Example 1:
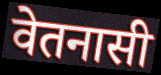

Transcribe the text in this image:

वेतनासी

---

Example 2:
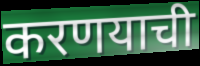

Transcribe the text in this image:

करणयाची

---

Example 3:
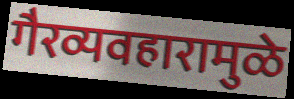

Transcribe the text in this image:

गैरव्यवहारामुळे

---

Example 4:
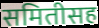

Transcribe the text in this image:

समितीसह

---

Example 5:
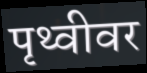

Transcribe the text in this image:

पृथ्वीवर